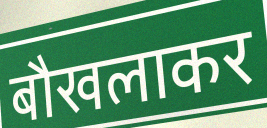
बौखलाकर